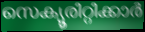
സെക്യൂരിറ്റിക്കാർ